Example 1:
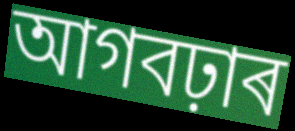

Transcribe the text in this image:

আগবঢ়াৰ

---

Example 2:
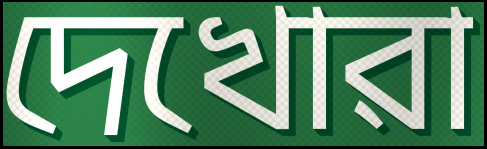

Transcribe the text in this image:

দেখোৱা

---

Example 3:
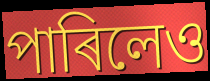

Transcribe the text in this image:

পাৰিলেও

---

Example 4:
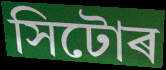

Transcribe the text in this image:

সিটোৰ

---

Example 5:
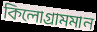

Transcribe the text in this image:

কিলোগ্ৰামমান